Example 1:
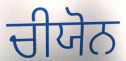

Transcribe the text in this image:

ਚੀਯੋਨ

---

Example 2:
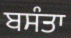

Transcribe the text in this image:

ਬਸੰਤਾ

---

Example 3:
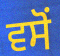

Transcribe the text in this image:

ਵਸੋਂ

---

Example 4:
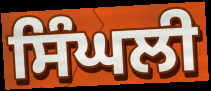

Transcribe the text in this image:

ਸਿੰਘਲੀ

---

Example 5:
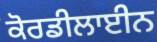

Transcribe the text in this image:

ਕੋਰਡੀਲਾਈਨ